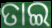
ତାଇ